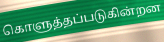
கொளுத்தப்படுகின்றன